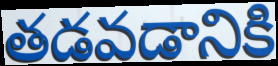
తడవడానికి